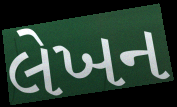
લેખન